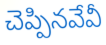
చెప్పినవేవీ